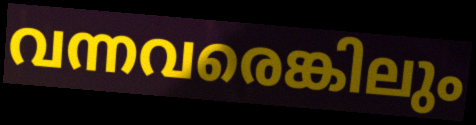
വന്നവരെങ്കിലും